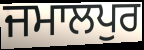
ਜਮਾਲਪੁਰ